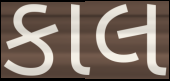
કાલ